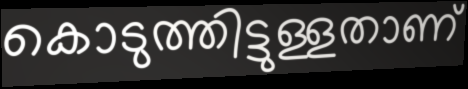
കൊടുത്തിട്ടുള്ളതാണ്